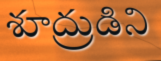
శూద్రుడిని